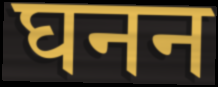
घनन